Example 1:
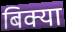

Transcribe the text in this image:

बिक्या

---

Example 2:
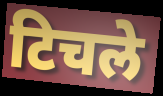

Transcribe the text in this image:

टिचले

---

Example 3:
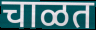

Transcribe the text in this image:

चाळत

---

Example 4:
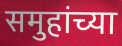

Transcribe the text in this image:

समुहांच्या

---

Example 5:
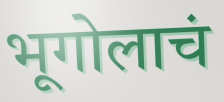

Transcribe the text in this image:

भूगोलाचं